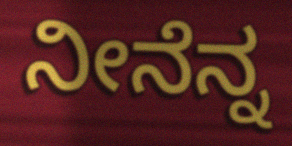
ನೀನೆನ್ನ